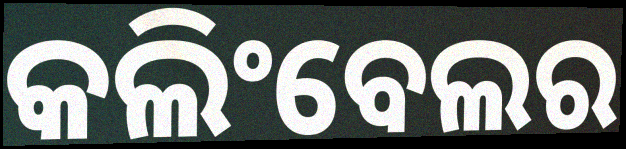
କଲିଂବେଲର